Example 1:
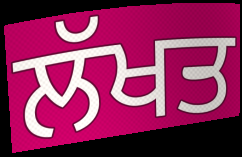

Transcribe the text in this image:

ਲੱਖਤ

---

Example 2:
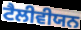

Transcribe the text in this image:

ਟੈਲੀਵੀਯਨ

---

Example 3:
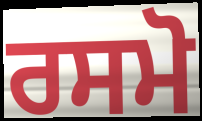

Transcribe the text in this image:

ਰਸਮੋ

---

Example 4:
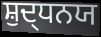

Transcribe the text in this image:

ਸ਼ੁਦ੍ਧਨਯ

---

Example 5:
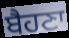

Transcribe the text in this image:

ਬੈਹਣਾ